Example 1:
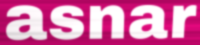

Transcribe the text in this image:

asnar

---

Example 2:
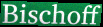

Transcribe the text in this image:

Bischoff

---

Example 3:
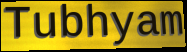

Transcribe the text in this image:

Tubhyam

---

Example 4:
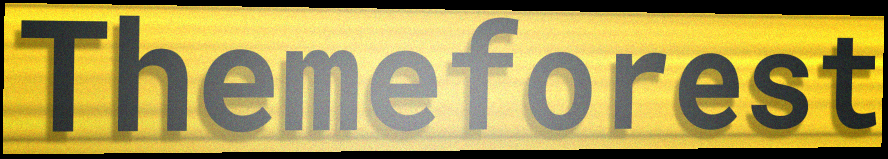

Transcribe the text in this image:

Themeforest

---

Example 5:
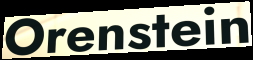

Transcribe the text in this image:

Orenstein